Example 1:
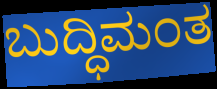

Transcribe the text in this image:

ಬುದ್ಧಿಮಂತ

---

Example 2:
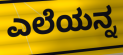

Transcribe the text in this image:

ಎಲೆಯನ್ನ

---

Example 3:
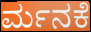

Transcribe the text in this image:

ರ್ಮನಕೆ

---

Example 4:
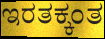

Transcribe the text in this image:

ಇರತಕ್ಕಂತ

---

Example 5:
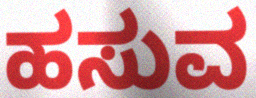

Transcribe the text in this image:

ಹಸುವ